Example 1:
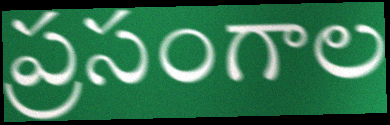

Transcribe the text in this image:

ప్రసంగాల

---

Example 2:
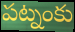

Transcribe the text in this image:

పట్నంకు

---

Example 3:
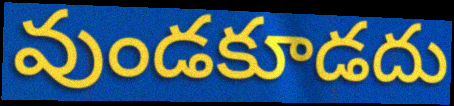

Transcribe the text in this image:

వుండకూడదు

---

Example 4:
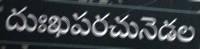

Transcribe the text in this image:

దుఃఖపరచునెడల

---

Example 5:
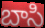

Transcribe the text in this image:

బాసి